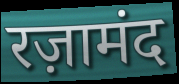
रज़ामंद